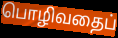
பொழிவதைப்